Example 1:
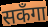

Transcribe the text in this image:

सकँगा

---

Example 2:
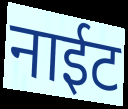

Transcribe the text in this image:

नाईट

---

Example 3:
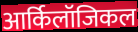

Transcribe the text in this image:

आर्किलॉजिकल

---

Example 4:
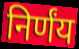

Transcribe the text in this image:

निर्णंय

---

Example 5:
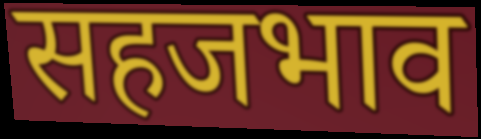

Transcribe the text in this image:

सहजभाव